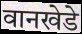
वानखेडे